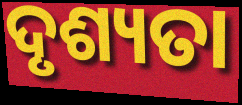
ଦୃଶ୍ୟତା